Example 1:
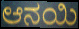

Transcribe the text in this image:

ಆನಯಿ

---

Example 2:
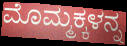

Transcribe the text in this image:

ಮೊಮ್ಮಕ್ಕಳನ್ನ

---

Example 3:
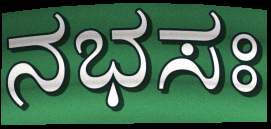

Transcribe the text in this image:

ನಭಸಃ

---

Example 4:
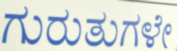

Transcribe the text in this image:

ಗುರುತುಗಳೇ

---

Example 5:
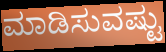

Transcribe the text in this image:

ಮಾಡಿಸುವಷ್ಟು